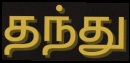
தந்து